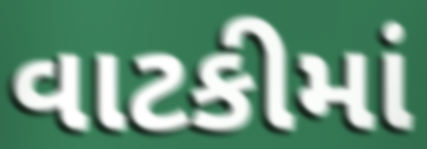
વાટકીમાં